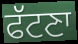
ਫੱਟਣਾ